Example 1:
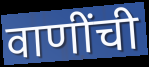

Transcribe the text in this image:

वाणींची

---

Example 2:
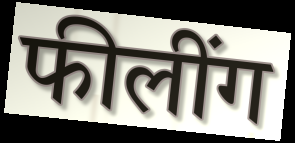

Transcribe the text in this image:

फीलींग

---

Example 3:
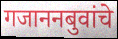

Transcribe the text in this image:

गजाननबुवांचे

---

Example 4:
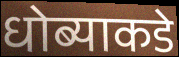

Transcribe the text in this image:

धोब्याकडे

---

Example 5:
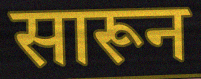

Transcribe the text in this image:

सारून